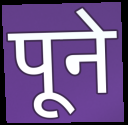
पूने